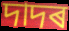
দাদৰ